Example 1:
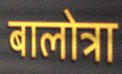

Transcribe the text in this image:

बालोत्रा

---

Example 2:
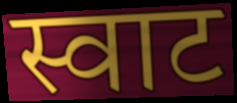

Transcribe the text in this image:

स्वाट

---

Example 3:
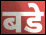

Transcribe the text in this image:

बडे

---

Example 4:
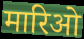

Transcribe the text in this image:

मारिओ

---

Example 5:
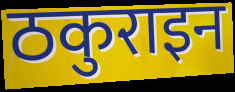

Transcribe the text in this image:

ठकुराइन